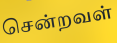
சென்றவள்